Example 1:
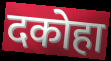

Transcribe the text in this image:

दकोहा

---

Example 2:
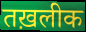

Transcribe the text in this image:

तख़लीक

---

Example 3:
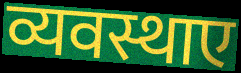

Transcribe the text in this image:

व्यवस्थाए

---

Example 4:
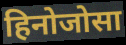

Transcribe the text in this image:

हिनोजोसा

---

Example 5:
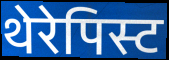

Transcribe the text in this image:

थेरेपिस्ट